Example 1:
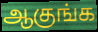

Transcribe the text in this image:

ஆகுங்க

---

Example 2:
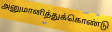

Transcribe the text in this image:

அனுமானித்துக்கொண்டு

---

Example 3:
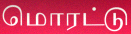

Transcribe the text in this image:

மொரட்டு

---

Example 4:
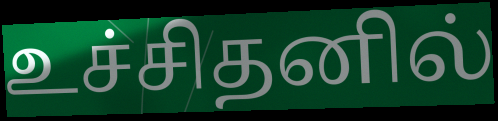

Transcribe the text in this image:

உச்சிதனில்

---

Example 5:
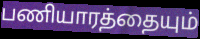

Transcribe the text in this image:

பணியாரத்தையும்